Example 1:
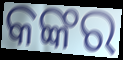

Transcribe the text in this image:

କଙ୍କର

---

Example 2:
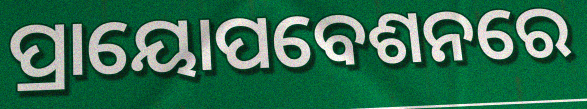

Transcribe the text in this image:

ପ୍ରାୟୋପବେଶନରେ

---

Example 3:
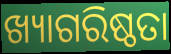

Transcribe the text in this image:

ଖ୍ୟାଗରିଷ୍ଠତା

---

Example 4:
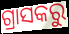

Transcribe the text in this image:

ଗ୍ରାସକରୁ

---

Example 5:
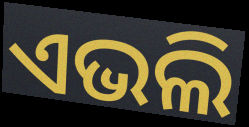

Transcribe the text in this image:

ଏଭଲି